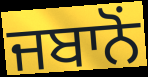
ਜਬਾਨੋਂ